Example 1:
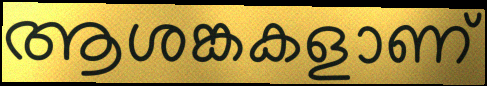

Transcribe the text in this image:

ആശങ്കകളാണ്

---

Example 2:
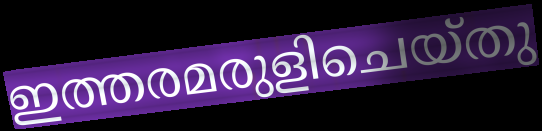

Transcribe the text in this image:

ഇത്തരമരുളിചെയ്തു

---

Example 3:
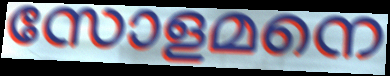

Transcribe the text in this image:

സോളമനെ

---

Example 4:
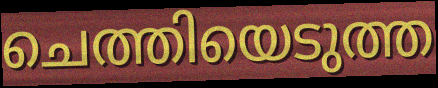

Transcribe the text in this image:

ചെത്തിയെടുത്ത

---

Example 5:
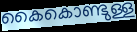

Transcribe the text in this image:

കൈകൊണ്ടുള്ള